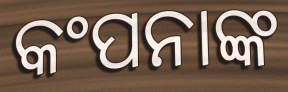
କଂପନାଙ୍କ